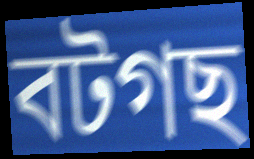
বটগছ